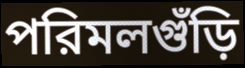
পরিমলগুঁড়ি